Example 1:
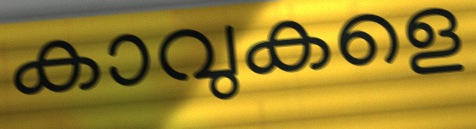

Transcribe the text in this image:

കാവുകളെ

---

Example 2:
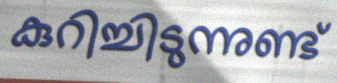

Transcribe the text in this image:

കുറിച്ചിടുന്നുണ്ട്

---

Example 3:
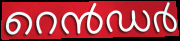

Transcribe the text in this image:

റെൻഡർ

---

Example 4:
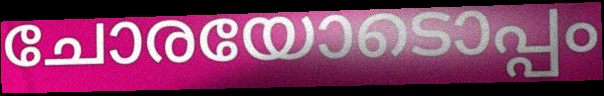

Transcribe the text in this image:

ചോരയോടൊപ്പം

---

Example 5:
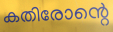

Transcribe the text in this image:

കതിരോന്റെ